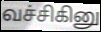
வச்சிகினு